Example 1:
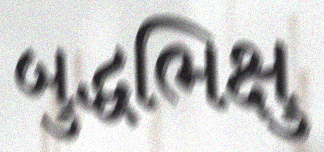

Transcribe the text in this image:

બુદ્ધભિક્ષુ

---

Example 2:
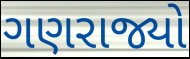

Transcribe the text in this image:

ગણરાજ્યો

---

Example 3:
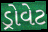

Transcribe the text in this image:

ડ્રોવેટ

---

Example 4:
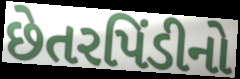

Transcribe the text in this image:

છેતરપિંડીનો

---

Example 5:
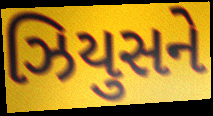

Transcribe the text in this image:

ઝિયુસને